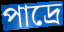
পাদ্রে